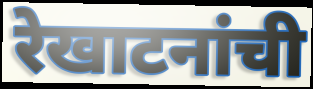
रेखाटनांची